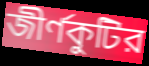
জীর্ণকুটির